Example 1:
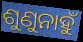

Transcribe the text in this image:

ଶୁଣୁନାହୁଁ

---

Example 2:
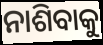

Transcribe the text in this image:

ନାଶିବାକୁ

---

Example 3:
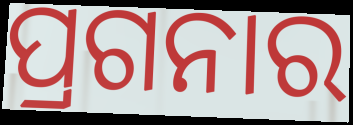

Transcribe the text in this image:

ପ୍ରଗନାର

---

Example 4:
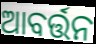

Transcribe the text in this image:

ଆବର୍ତ୍ତନ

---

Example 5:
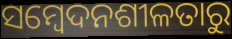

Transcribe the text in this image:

ସମ୍ବେଦନଶୀଳତାରୁ